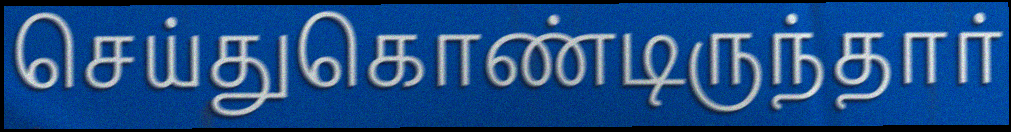
செய்துகொண்டிருந்தார்